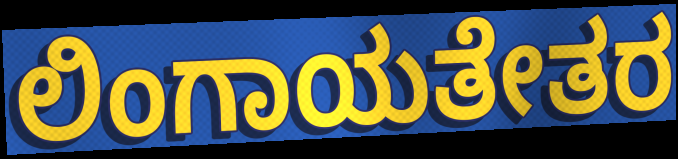
ಲಿಂಗಾಯತೇತರ